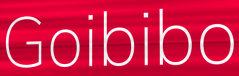
Goibibo